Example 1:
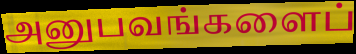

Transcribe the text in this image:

அனுபவங்களைப்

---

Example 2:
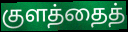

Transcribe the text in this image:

குளத்தைத்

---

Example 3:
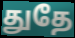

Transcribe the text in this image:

துதே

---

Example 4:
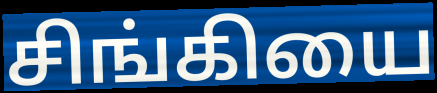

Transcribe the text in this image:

சிங்கியை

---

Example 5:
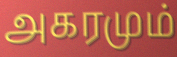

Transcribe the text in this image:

அகரமும்